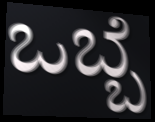
ಒಬ್ಬೆ